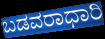
ಬಡವರಾಧಾರಿ